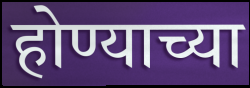
होण्‍याच्‍या